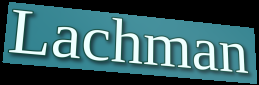
Lachman